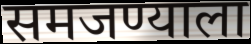
समजण्याला